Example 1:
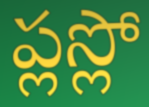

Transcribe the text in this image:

ప్లస్లో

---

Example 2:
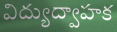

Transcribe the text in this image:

విద్యుద్వాహక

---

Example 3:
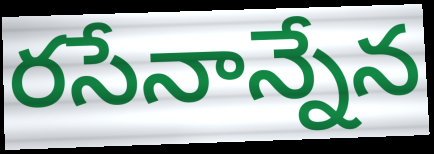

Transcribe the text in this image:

రసేనాన్నేన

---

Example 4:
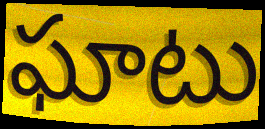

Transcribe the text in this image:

ఘాటు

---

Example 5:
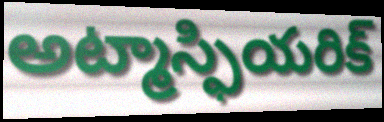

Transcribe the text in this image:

అట్మాస్ఫియరిక్